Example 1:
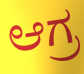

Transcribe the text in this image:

ಆಗ್ರ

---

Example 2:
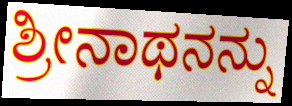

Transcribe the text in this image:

ಶ್ರೀನಾಥನನ್ನು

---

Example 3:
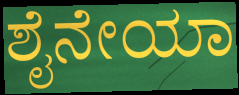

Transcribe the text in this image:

ಶೈನೇಯಾ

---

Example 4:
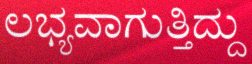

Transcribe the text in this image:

ಲಭ್ಯವಾಗುತ್ತಿದ್ದು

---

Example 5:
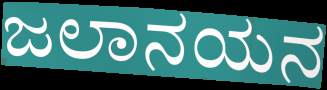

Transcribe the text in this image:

ಜಲಾನಯನ